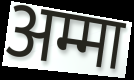
अम्‍मा